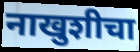
नाखुशीचा